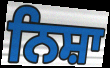
ਨਿਸ਼ਾ